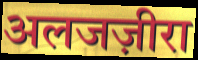
अलजज़ीरा